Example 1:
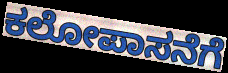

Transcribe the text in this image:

ಕಲೋಪಾಸನೆಗೆ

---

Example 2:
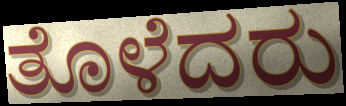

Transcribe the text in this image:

ತೊಳೆದರು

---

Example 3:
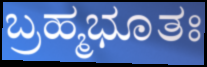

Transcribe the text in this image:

ಬ್ರಹ್ಮಭೂತಃ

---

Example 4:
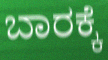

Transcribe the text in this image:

ಬಾರಕ್ಕೆ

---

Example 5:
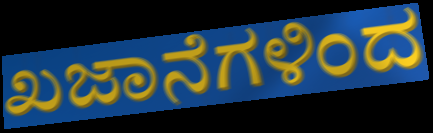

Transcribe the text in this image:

ಖಜಾನೆಗಳಿಂದ